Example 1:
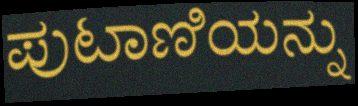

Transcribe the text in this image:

ಪುಟಾಣಿಯನ್ನು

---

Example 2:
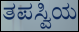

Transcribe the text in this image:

ತಪಸ್ವಿಯ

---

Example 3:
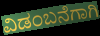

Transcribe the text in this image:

ವಿಡಂಬನೆಗಾಗಿ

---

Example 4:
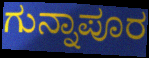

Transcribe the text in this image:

ಗುನ್ನಾಪೂರ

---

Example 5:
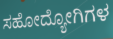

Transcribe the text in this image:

ಸಹೋದ್ಯೋಗಿಗಳ